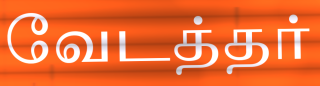
வேடத்தர்